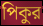
পিকুর